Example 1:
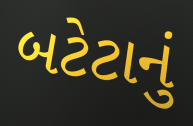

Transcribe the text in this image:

બટેટાનું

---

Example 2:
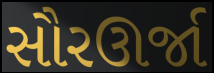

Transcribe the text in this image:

સૌરઊર્જા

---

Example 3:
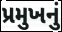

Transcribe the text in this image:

પ્રમુખનું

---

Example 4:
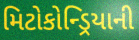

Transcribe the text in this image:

મિટોકોન્ડ્રિયાની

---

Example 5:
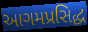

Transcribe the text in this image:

આગમપ્રસિદ્ધ